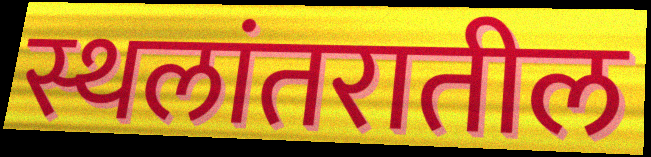
स्थलांतरातील